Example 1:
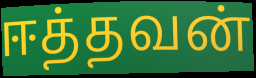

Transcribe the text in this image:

ஈத்தவன்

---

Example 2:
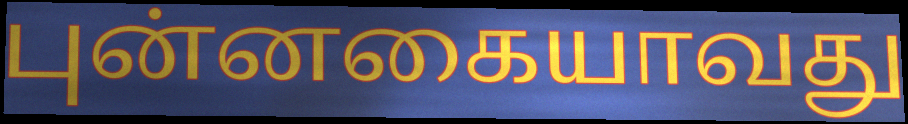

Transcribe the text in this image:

புன்னகையாவது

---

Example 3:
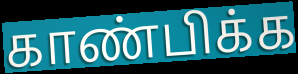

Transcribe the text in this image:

காண்பிக்க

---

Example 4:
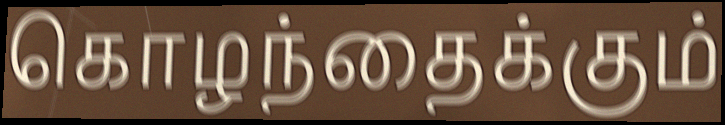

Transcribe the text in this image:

கொழந்தைக்கும்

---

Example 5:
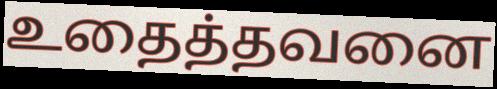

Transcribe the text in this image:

உதைத்தவனை